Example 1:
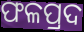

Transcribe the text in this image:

ଫଳପ୍ରଦ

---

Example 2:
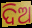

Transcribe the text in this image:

ଦିଅ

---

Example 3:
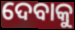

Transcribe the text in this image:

ଦେବାକୁ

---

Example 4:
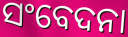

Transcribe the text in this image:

ସଂବେଦନା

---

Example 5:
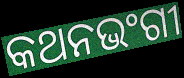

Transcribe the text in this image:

କଥନଭଂଗୀ